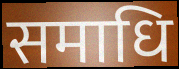
समाधि